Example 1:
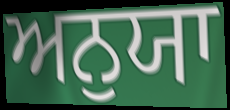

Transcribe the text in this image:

ਅਨੁਯਾ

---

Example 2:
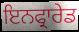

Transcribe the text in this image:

ਇਨਫ੍ਰਾਰੇਡ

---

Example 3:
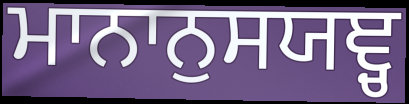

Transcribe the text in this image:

ਮਾਨਾਨੁਸਯਞ੍ਚ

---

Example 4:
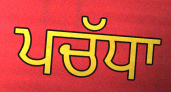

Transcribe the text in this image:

ਪਚੱਧਾ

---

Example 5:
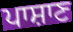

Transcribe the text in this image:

ਪਾਸ਼ਾਣ